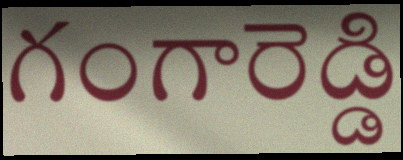
గంగారెడ్డి